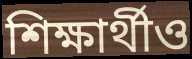
শিক্ষার্থীও